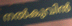
നൽകുവിൻ